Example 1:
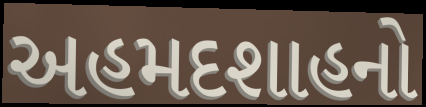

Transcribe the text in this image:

અહમદશાહનો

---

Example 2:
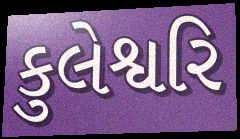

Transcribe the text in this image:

કુલેશ્વરિ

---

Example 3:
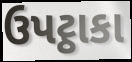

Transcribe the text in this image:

ઉપટ્ઠાકા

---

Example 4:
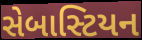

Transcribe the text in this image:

સેબાસ્ટિયન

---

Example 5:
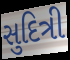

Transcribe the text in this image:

સુદિત્રી